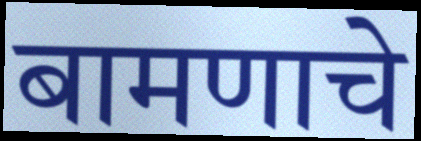
बामणाचे